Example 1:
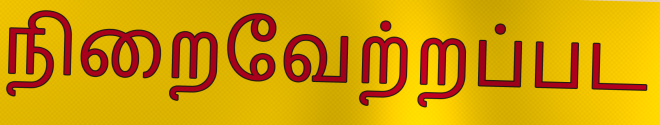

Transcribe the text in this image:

நிறைவேற்றப்பட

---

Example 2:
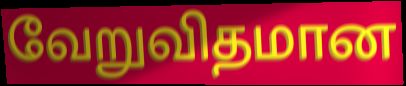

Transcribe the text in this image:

வேறுவிதமான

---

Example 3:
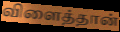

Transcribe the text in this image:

விளைத்தான்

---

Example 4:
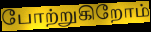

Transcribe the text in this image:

போற்றுகிறோம்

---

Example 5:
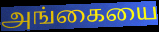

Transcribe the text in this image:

அங்கையை